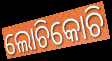
ଲୋଚିକୋଚି